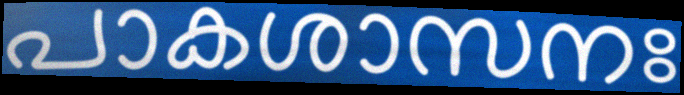
പാകശാസനഃ